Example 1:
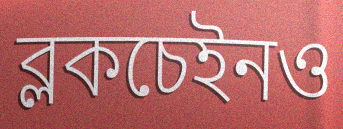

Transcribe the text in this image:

ব্লকচেইনও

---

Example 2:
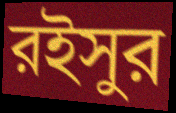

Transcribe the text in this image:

রইসুর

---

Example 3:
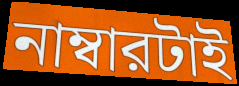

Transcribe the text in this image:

নাম্বারটাই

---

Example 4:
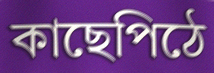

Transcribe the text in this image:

কাছেপিঠে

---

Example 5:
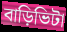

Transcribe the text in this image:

বাড়িভিটা